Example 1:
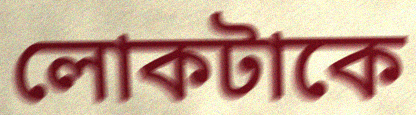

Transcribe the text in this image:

লোকটাকে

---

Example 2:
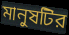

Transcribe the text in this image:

মানুষটির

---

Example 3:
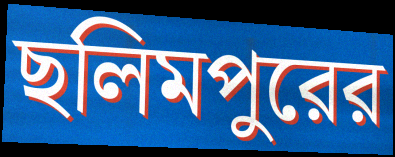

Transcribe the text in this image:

ছলিমপুরের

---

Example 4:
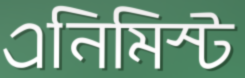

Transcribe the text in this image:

এনিমিস্ট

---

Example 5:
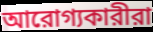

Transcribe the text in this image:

আরোগ্যকারীরা